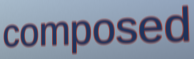
composed